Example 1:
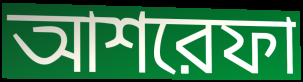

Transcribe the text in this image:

আশরেফা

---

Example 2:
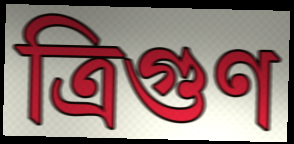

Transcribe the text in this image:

ত্রিগুণ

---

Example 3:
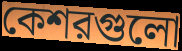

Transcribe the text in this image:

কেশরগুলো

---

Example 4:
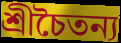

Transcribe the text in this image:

শ্রীচৈতন্য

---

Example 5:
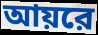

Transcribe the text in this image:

আয়রে